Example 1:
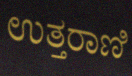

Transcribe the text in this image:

ಉತ್ತರಾಣಿ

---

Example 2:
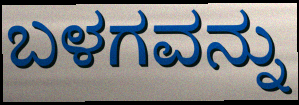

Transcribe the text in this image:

ಬಳಗವನ್ನು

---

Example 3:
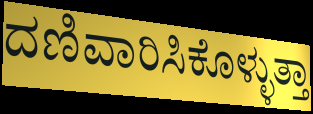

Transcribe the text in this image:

ದಣಿವಾರಿಸಿಕೊಳ್ಳುತ್ತಾ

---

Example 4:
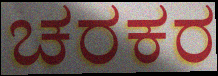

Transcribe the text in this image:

ಚರಕರ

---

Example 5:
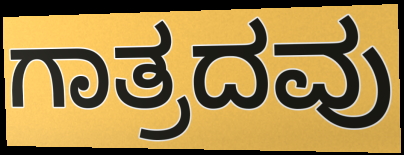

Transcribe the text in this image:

ಗಾತ್ರದವು